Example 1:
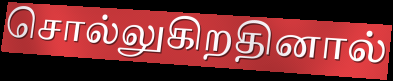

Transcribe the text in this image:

சொல்லுகிறதினால்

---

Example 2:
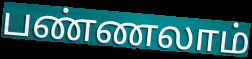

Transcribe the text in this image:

பண்ணலாம்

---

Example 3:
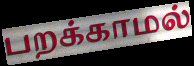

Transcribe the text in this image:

பறக்காமல்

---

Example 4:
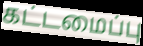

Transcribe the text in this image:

கட்டமைப்பு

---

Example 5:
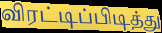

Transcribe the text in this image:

விரட்டிப்பிடித்து